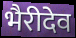
भैरीदेव